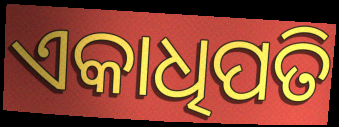
ଏକାଧିପତି